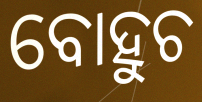
ବୋହୁଚ